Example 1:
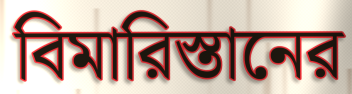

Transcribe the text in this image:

বিমারিস্তানের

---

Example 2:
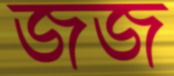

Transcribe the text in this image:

জজ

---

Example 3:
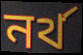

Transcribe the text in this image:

নর্থ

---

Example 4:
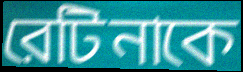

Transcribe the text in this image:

রেটিনাকে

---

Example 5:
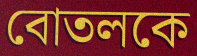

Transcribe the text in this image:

বোতলকে